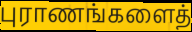
புராணங்களைத்